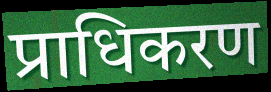
प्राधिकरण